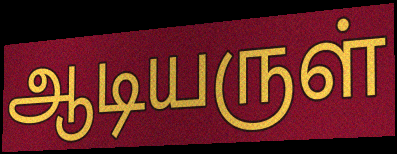
ஆடியருள்